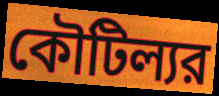
কৌটিল্যর